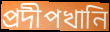
প্রদীপখানি